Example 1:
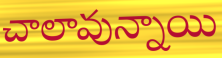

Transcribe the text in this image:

చాలావున్నాయి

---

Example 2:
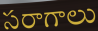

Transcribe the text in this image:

సరాగాలు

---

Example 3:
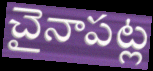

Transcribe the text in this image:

చైనాపట్ల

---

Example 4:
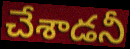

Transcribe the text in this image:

చేశాడనీ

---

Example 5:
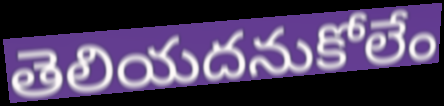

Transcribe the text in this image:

తెలియదనుకోలేం